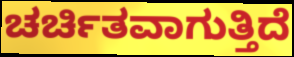
ಚರ್ಚಿತವಾಗುತ್ತಿದೆ